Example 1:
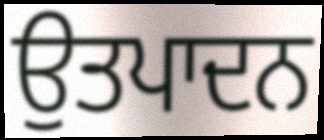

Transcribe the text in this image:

ਉਤਪਾਦਨ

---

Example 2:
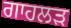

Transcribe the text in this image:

ਗਾਹਲੜ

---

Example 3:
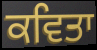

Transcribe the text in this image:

ਕਵਿਤਾ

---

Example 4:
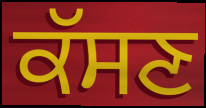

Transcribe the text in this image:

ਕੱਸਣ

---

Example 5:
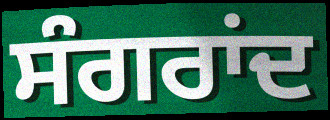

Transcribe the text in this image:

ਸੰਗਰਾਂਦ